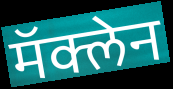
मॅक्लेन